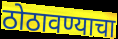
ठोठावण्याचा